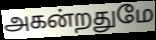
அகன்றதுமே